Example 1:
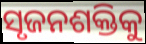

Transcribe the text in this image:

ସୃଜନଶକ୍ତିକୁ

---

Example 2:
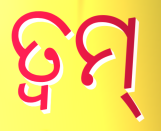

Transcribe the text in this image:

ତ୍ଵମ୍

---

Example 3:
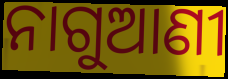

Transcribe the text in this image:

ନାଗୁଆଣୀ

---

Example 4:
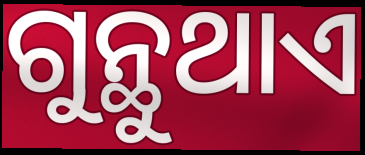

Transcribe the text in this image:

ଗୁନ୍ଥୁଥାଏ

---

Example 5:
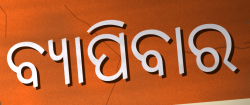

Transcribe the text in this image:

ବ୍ୟାପିବାର